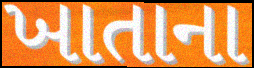
ખાતાના